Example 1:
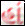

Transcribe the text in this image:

હાં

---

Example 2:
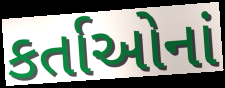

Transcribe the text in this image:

કર્તાઓનાં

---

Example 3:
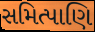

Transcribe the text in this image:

સમિત્પાણિ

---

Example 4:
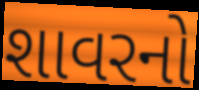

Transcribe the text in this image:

શાવરનો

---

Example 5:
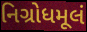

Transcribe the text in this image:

નિગ્રોધમૂલં